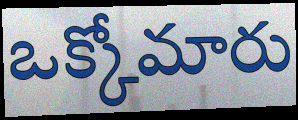
ఒక్కోమారు